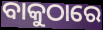
ବାକୁଠାରେ